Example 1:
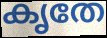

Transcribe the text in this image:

കൃതേ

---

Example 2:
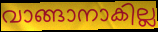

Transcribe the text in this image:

വാങ്ങാനാകില്ല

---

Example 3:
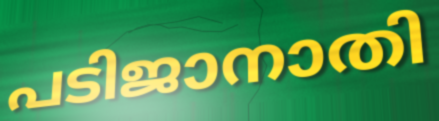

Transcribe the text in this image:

പടിജാനാതി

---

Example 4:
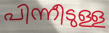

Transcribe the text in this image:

പിന്നീടുള്ള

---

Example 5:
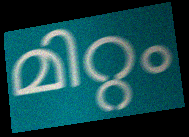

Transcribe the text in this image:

മിറ്റം